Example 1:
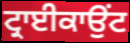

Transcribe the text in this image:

ਟ੍ਰਾਈਕਾਉਂਟ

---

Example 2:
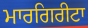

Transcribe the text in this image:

ਮਾਰਗਿਰੀਟਾ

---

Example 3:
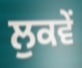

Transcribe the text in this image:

ਲੁਕਵੇਂ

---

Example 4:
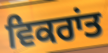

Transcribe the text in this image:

ਵਿਕਰਾਂਤ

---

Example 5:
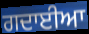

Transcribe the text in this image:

ਗਦਾਈਆ